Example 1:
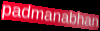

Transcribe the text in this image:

padmanabhan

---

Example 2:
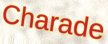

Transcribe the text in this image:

Charade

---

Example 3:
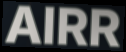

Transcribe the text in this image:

AIRR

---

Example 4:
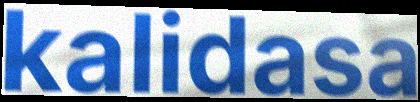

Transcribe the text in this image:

kalidasa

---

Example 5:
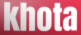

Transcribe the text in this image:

khota